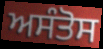
ਅਸੰਤੋਸ